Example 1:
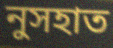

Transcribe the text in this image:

নুসহাত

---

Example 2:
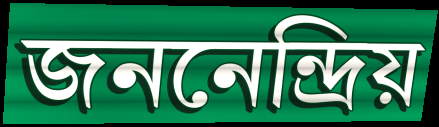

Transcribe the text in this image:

জননেন্দ্রিয়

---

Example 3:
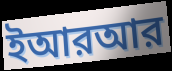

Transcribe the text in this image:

ইআরআর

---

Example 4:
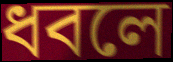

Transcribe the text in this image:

ধবলে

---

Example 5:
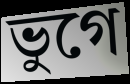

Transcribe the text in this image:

ভুগে